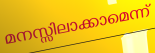
മനസ്സിലാക്കാമെന്ന്